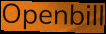
Openbill